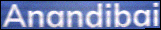
Anandibai